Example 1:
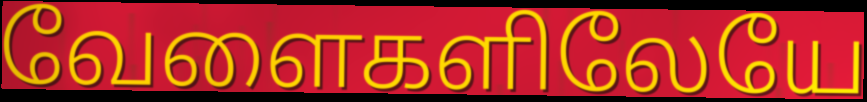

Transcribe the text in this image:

வேளைகளிலேயே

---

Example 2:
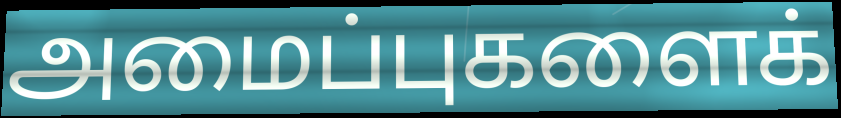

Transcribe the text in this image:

அமைப்புகளைக்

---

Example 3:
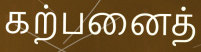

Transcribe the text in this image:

கற்பனைத்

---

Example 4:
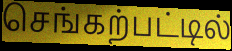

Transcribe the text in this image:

செங்கற்பட்டில்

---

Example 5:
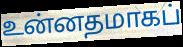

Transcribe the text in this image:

உன்னதமாகப்